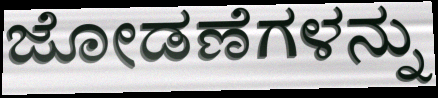
ಜೋಡಣೆಗಳನ್ನು